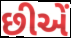
છીએં